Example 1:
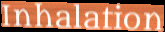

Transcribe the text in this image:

Inhalation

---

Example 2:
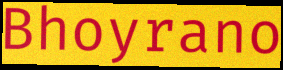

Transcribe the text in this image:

Bhoyrano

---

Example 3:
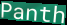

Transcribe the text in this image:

Panth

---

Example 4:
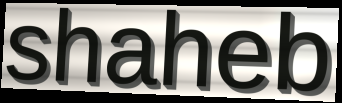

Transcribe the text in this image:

shaheb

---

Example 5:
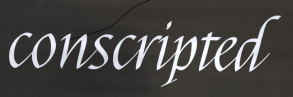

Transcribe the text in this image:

conscripted